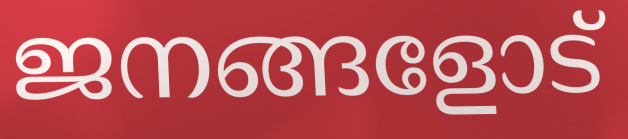
ജനങ്ങളോട്